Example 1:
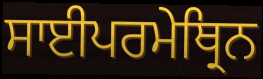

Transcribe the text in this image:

ਸਾਈਪਰਮੇਥ੍ਰਿਨ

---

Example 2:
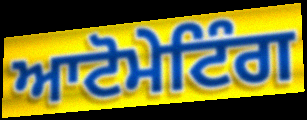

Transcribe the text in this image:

ਆਟੋਮੇਟਿੰਗ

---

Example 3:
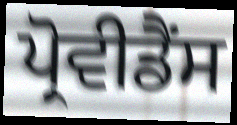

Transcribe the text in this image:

ਪ੍ਰੋਵੀਡੈਂਸ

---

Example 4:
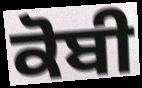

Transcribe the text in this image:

ਕੋਬੀ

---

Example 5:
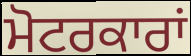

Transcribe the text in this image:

ਮੋਟਰਕਾਰਾਂ